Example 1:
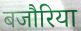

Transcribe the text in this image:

बजौरिया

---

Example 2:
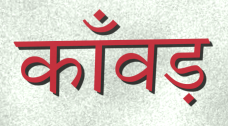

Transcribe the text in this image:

काँवड़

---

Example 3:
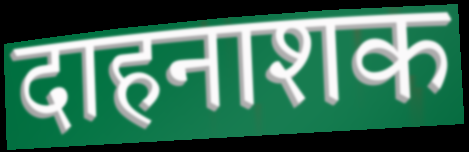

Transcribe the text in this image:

दाहनाशक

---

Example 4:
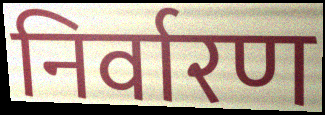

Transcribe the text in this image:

निर्वारण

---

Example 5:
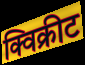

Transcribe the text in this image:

क्विक्रीट